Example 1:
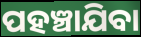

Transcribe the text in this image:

ପହଞ୍ଚାଯିବା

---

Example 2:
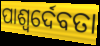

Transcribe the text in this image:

ପାଶ୍ୱର୍ଦେବତା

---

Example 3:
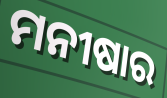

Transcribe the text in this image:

ମନୀଷାର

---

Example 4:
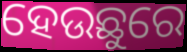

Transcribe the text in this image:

ହେଉଛୁରେ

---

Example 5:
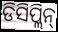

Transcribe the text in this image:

ଡିସିପ୍ଲିନ୍